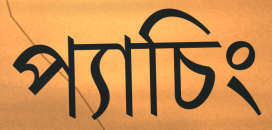
প্যাচিং